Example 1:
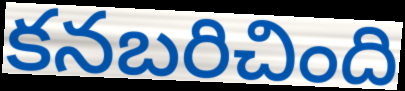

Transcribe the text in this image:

కనబరిచింది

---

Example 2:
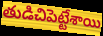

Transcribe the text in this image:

తుడిచిపెట్టేశాయి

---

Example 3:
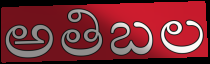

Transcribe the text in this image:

అతిబల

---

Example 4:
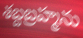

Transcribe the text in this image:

శబ్దబ్రహ్మను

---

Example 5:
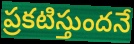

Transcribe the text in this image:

ప్రకటిస్తుందనే